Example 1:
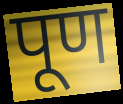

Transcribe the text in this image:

पूण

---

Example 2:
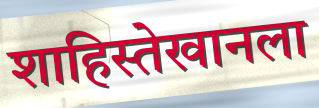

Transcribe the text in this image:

शाहिस्तेखानला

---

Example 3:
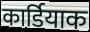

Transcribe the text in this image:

कार्डियाक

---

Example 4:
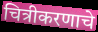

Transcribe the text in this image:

चित्रीकरणाचे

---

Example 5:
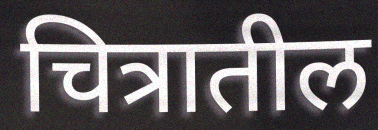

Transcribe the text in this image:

चित्रातील